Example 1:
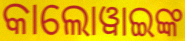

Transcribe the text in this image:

କାଲୋୱାଇଙ୍କ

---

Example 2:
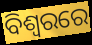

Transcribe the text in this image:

ବିଶ୍ବରରେ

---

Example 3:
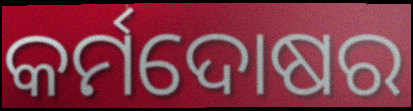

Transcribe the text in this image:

କର୍ମଦୋଷର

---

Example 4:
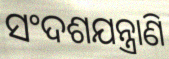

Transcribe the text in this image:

ସଂଦଶଯନ୍ତ୍ରାଣି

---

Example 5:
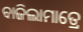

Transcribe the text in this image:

ବାଜିଲାମାତ୍ରେ